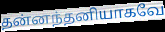
தன்னந்தனியாகவே